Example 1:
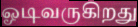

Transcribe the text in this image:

ஓடிவருகிறது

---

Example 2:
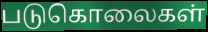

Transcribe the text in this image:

படுகொலைகள்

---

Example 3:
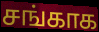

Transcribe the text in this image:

சங்காக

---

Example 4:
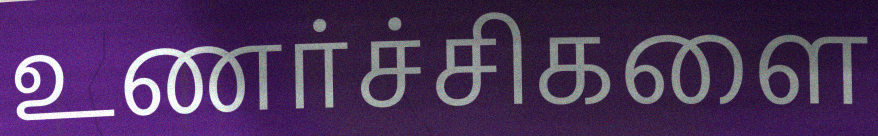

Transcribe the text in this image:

உணர்ச்சிகளை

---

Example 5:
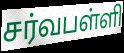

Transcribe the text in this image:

சர்வபள்ளி